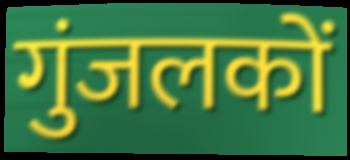
गुंजलकों